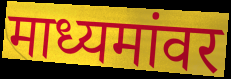
माध्यमांवर